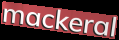
mackeral